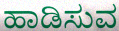
ಹಾಡಿಸುವ